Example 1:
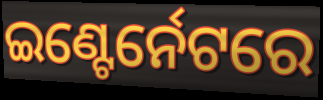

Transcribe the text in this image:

ଇଣ୍ଟେର୍ନେଟରେ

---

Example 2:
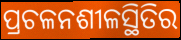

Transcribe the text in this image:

ପ୍ରଚଳନଶୀଳସ୍ଥିତିର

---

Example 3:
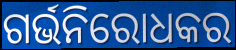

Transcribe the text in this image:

ଗର୍ଭନିରୋଧକର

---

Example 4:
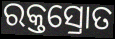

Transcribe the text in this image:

ରକ୍ତସ୍ରୋତ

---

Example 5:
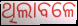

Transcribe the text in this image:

ଥିଲାବଳେ